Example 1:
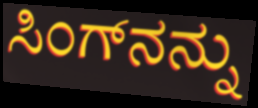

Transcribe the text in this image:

ಸಿಂಗ್‌ನನ್ನು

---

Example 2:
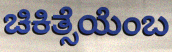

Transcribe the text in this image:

ಚಿಕಿತ್ಸೆಯೆಂಬ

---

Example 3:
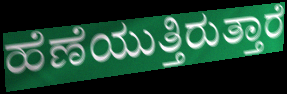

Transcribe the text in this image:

ಹೆಣೆಯುತ್ತಿರುತ್ತಾರೆ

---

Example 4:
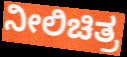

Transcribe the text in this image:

ನೀಲಿಚಿತ್ರ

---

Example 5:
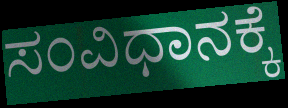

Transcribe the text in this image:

ಸಂವಿಧಾನಕ್ಕೆ